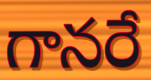
గానరే